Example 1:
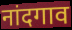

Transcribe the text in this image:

नांदगाव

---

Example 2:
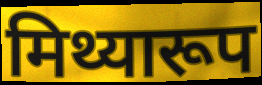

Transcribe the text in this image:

मिथ्यारूप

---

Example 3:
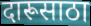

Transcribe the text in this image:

दारूसाठा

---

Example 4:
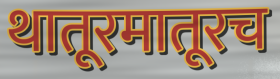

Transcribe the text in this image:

थातूरमातूरच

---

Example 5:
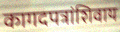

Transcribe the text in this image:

कागदपत्रांशिवाय